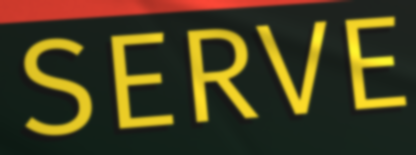
SERVE